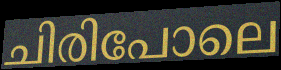
ചിരിപോലെ